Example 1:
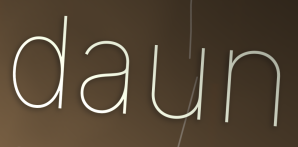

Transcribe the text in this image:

daun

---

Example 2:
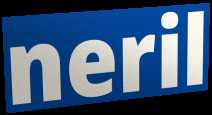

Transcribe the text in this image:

neril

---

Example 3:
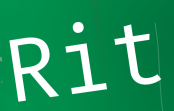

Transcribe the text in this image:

Rit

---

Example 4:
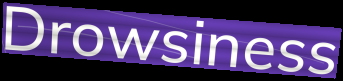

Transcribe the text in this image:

Drowsiness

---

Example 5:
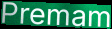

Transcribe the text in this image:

Premam